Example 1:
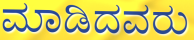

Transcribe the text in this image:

ಮಾಡಿದವರು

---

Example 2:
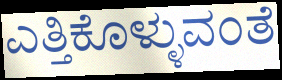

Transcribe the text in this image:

ಎತ್ತಿಕೊಳ್ಳುವಂತೆ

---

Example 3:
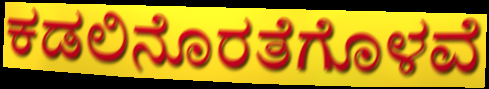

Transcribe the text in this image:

ಕಡಲಿನೊರತೆಗೊಳವೆ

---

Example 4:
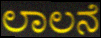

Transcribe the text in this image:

ಲಾಲನೆ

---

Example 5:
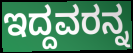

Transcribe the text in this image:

ಇದ್ದವರನ್ನ